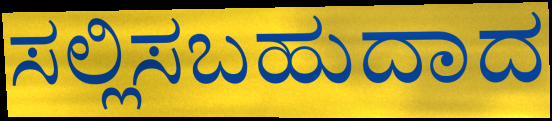
ಸಲ್ಲಿಸಬಹುದಾದ